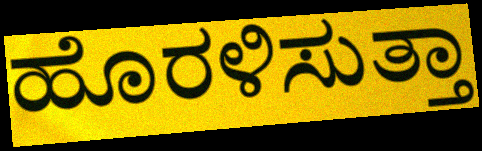
ಹೊರಳಿಸುತ್ತಾ